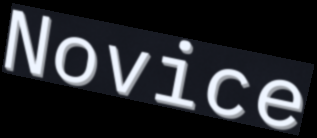
Novice